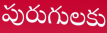
పురుగులకు